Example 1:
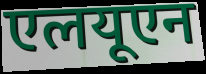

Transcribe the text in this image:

एलयूएन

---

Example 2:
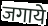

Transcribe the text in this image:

जगाये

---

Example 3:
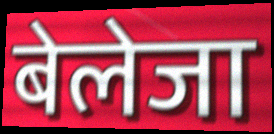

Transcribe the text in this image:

बेलेजा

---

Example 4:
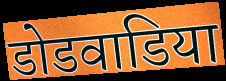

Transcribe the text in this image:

डोडवाडिया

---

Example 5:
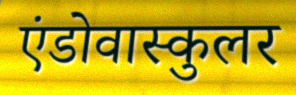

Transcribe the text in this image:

एंडोवास्कुलर